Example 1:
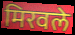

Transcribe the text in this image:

मिरवले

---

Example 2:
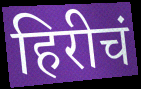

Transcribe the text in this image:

हिरीचं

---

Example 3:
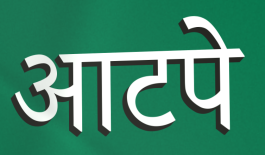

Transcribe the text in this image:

आटपे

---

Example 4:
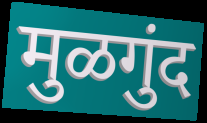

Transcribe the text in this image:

मुळगुंद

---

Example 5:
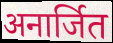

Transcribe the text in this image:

अनार्जित